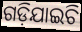
ଗଡ଼ିଯାଇଚି